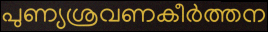
പുണ്യശ്രവണകീർത്തന